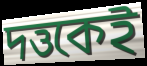
দত্তকেই